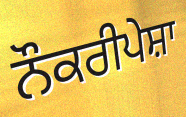
ਨੌਕਰੀਪੇਸ਼ਾ